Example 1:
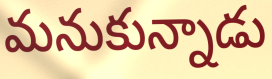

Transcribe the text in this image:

మనుకున్నాడు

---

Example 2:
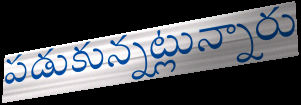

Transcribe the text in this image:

పడుకున్నట్లున్నారు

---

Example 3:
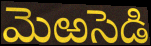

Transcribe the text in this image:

మెఱసెడి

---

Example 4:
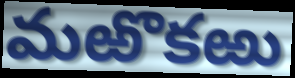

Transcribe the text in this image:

మఱొకఱు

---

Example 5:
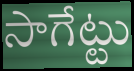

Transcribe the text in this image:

సాగేట్టు